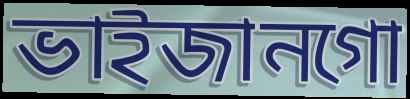
ভাইজানগো